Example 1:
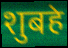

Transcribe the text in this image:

शुबहे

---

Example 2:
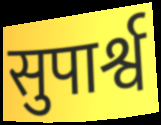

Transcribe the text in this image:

सुपार्श्व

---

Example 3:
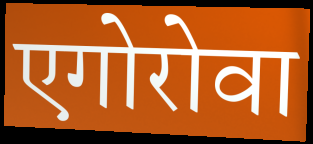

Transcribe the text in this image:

एगोरोवा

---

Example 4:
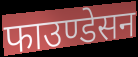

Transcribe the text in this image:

फाउण्डेसन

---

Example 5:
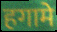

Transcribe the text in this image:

हगामे